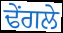
ਢੇਂਗਲੇ